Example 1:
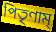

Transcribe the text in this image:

পিতৃণাম্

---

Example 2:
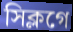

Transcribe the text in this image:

সিক্লগে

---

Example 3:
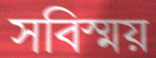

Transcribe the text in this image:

সবিস্ময়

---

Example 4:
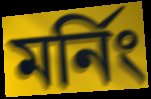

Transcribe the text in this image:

মর্নিং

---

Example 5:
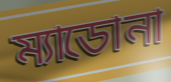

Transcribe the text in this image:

ম্যাডোনা